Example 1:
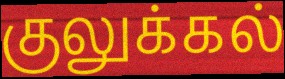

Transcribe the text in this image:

குலுக்கல்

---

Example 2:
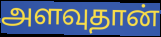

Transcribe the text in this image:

அளவுதான்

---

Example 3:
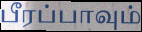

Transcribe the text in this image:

பீரப்பாவும்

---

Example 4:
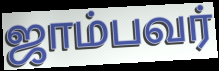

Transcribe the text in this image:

ஜாம்பவர்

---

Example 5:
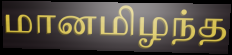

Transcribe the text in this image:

மானமிழந்த